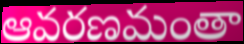
ఆవరణమంతా